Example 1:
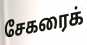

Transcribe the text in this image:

சேகரைக்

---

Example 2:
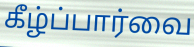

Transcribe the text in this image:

கீழ்ப்பார்வை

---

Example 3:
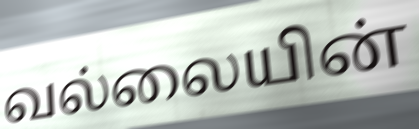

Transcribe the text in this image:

வல்லையின்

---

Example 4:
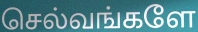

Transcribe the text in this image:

செல்வங்களே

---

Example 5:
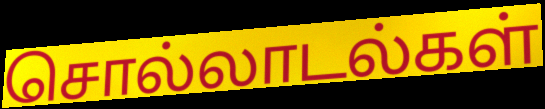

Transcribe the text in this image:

சொல்லாடல்கள்